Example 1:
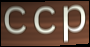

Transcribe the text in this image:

ccp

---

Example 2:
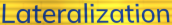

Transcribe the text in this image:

Lateralization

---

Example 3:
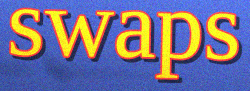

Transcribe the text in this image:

swaps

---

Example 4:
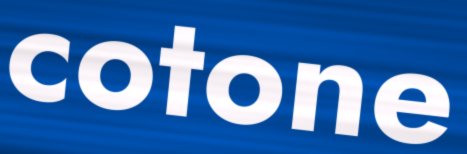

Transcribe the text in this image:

cotone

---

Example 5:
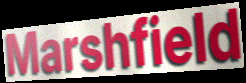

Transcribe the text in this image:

Marshfield